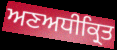
ਅਣਅਧੀਕ੍ਰਿਤ